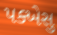
પક્ખેસુ